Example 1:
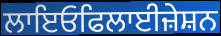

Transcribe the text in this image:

ਲਾਇਓਫਿਲਾਈਜ਼ੇਸ਼ਨ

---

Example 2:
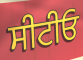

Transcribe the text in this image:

ਸੀਟੀਓ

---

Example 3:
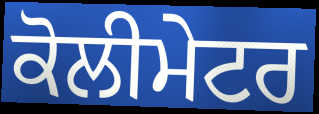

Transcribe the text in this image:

ਕੋਲੀਮੇਟਰ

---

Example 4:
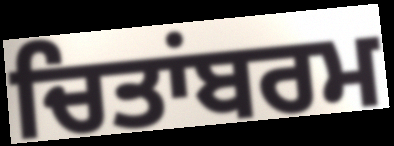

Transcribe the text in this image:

ਚਿਤਾਂਬਰਮ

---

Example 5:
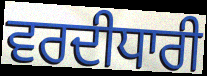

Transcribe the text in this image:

ਵਰਦੀਧਾਰੀ